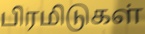
பிரமிடுகள்